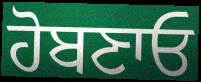
ਹੋਬਣਾਓ